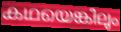
കഥയെങ്കിലും